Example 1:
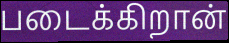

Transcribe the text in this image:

படைக்கிறான்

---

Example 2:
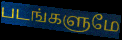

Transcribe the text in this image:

படங்களுமே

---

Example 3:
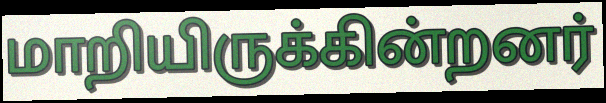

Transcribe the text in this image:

மாறியிருக்கின்றனர்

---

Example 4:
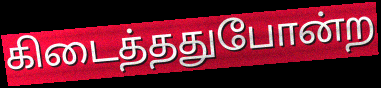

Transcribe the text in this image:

கிடைத்ததுபோன்ற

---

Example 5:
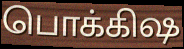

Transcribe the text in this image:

பொக்கிஷ